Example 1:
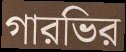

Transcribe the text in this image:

গারভির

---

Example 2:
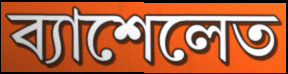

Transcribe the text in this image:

ব্যাশেলেত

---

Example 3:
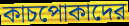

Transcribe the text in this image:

কাচপোকাদের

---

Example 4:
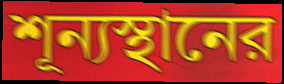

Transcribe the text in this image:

শূন্যস্থানের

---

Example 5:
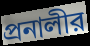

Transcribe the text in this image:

প্রনালীর